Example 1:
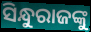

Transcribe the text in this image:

ସିନ୍ଧୁରାଜଙ୍କୁ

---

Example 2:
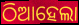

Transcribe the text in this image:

ଠିଆହେଲା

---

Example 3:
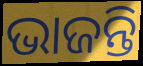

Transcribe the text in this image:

ଭାଜନ୍ତି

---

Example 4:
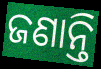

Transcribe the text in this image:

ଜଣାନ୍ତି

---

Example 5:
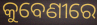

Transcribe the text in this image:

କୁବେଣୀରେ